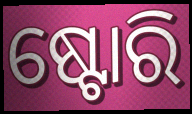
ଷ୍ଟୋରି